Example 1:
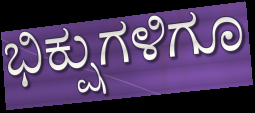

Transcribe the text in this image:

ಭಿಕ್ಷುಗಳಿಗೂ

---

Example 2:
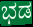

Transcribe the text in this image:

ಭಡ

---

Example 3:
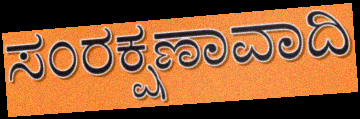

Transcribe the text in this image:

ಸಂರಕ್ಷಣಾವಾದಿ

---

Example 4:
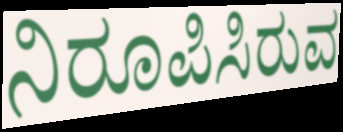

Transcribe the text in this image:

ನಿರೂಪಿಸಿರುವ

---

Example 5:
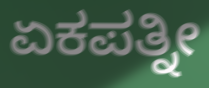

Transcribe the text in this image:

ಏಕಪತ್ನೀ